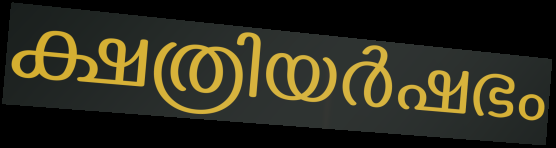
ക്ഷത്രിയർഷഭം